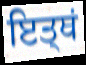
ਇਤ੍ਥਂ